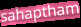
sahaptham